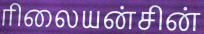
ரிலையன்சின்